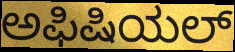
ಅಫಿಷಿಯಲ್